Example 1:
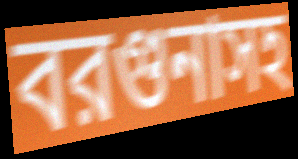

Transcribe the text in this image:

বরগুনাসহ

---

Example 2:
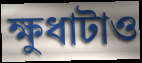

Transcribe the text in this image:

ক্ষুধাটাও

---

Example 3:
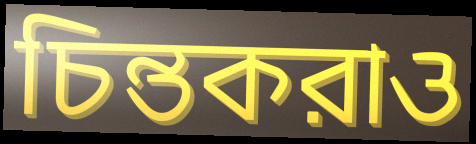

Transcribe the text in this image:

চিন্তকরাও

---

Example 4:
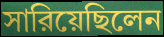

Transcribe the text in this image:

সারিয়েছিলেন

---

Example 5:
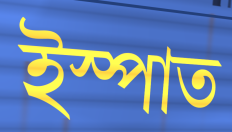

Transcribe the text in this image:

ইস্পাত